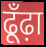
ढूँढ़ा